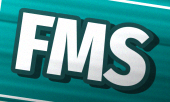
FMS